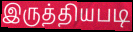
இருத்தியபடி